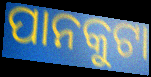
ପାନକୁଟା